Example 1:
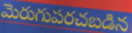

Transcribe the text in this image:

మెరుగుపరచబడిన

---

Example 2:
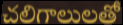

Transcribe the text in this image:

చలిగాలులతో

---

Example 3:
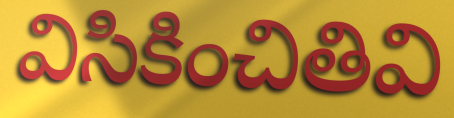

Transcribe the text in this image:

విసికించితివి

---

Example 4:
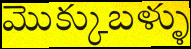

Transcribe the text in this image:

మొక్కుబళ్ళు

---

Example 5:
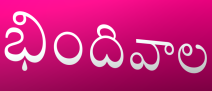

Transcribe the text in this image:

భిందివాల